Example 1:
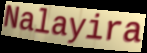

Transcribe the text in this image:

Nalayira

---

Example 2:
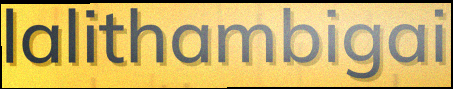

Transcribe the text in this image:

lalithambigai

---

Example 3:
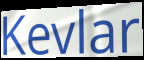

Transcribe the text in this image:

Kevlar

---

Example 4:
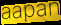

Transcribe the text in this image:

aapan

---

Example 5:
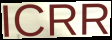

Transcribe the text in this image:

ICRR